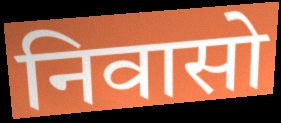
निवासो